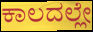
ಕಾಲದಲ್ಲೇ